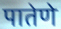
पातेणे